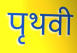
पृथवी